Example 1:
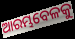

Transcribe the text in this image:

ଆରମ୍ଭବେଳକୁ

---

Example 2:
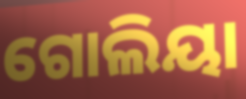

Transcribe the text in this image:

ଗୋଲିୟା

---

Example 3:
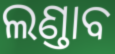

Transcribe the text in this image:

ଲଣ୍ଡାବ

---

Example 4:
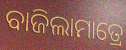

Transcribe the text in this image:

ବାଜିଲାମାତ୍ରେ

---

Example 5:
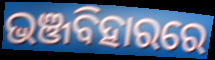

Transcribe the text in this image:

ଭଞ୍ଜବିହାରରେ